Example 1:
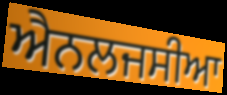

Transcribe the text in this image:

ਐਨਲਜਸੀਆ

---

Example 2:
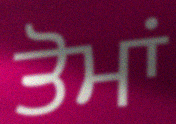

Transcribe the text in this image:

ਤੋਮਾਂ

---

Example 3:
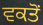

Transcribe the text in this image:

ਵਕਤੋਂ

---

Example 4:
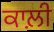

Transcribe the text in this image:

ਕਾਲ਼ੀ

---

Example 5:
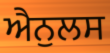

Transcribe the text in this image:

ਐਨੁਲਸ